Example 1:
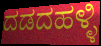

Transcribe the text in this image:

ದಡದಹಳ್ಳಿ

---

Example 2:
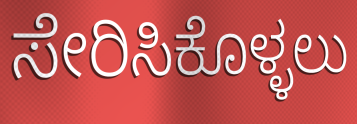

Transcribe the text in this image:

ಸೇರಿಸಿಕೊಳ್ಳಲು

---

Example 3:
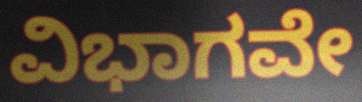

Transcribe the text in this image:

ವಿಭಾಗವೇ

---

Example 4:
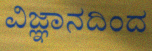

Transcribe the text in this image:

ವಿಜ್ಞಾನದಿಂದ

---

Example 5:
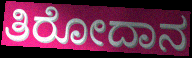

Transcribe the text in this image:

ತಿರೋದಾನ